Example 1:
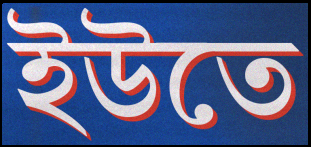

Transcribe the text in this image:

ইউতে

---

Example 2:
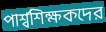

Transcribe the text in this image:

পার্শ্বশিক্ষকদের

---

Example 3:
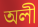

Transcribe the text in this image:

অলী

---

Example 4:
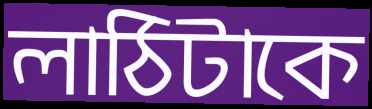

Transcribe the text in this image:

লাঠিটাকে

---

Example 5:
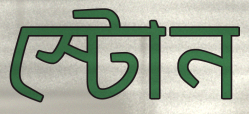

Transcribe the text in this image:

স্টোন